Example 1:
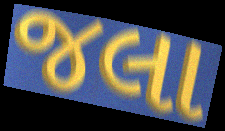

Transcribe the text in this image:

જલા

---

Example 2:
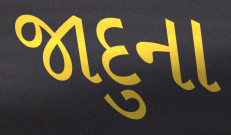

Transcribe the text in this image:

જાદુના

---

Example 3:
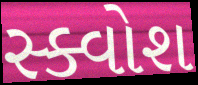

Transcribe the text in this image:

સ્ક્વોશ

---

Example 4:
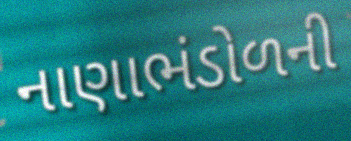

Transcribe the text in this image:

નાણાભંડોળની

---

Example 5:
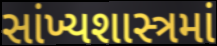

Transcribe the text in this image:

સાંખ્યશાસ્ત્રમાં